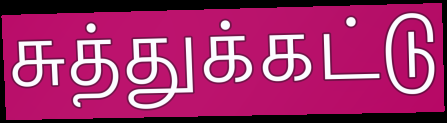
சுத்துக்கட்டு